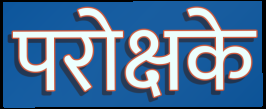
परोक्षके